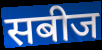
सबीज